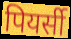
पियर्सी